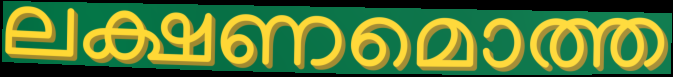
ലക്ഷണമൊത്ത